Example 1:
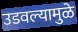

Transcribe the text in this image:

उडवल्यामुळे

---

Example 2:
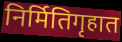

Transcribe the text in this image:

निर्मितिगृहात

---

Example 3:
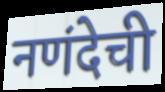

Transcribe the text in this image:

नणंदेची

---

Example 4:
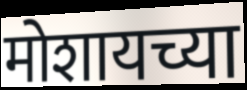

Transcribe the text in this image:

मोशायच्या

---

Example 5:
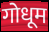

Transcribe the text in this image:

गोधूम